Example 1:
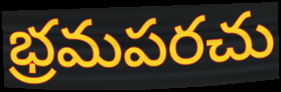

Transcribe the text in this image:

భ్రమపరచు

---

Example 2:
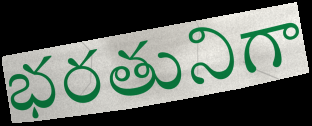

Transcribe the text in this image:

భరతునిగా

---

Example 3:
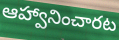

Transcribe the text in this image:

ఆహ్వానించారట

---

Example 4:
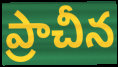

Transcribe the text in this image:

ప్రాచీన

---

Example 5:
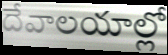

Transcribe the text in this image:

దేవాలయాల్లో